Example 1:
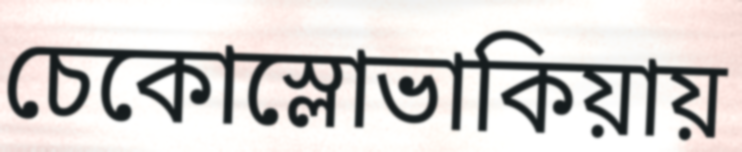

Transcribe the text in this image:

চেকোস্লোভাকিয়ায়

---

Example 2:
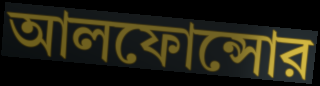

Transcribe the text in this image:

আলফোন্সোর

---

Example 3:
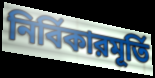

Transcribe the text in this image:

নির্বিকারমূর্তি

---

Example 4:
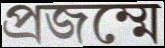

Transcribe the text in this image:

প্রজম্মে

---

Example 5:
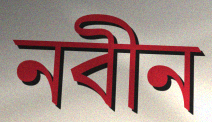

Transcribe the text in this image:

নবীন